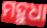
ମହୁଧା